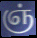
ஞ்